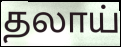
தலாய்